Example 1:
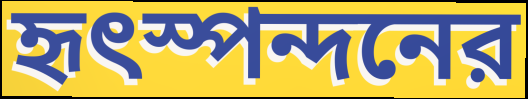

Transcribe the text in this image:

হৃৎস্পন্দনের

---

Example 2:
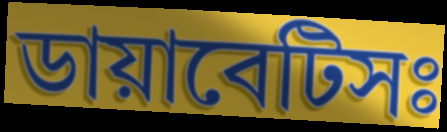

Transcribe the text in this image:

ডায়াবেটিসঃ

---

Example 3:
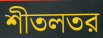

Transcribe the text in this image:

শীতলতর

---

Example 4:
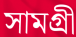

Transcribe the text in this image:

সামগ্রী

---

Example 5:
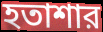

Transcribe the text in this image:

হতাশার